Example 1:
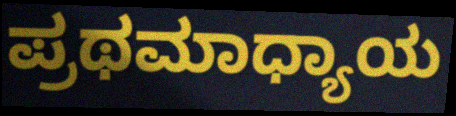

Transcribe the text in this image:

ಪ್ರಥಮಾಧ್ಯಾಯ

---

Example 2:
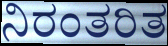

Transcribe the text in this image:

ನಿರಂತರಿತ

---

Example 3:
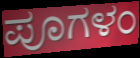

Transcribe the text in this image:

ಪೂಗಳಂ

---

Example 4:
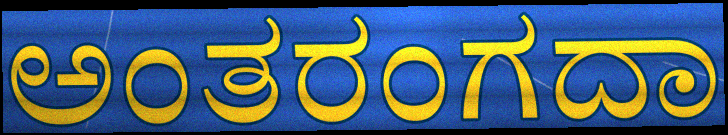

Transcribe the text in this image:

ಅಂತರಂಗದಾ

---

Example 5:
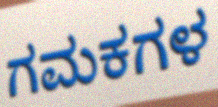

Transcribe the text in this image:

ಗಮಕಗಳ